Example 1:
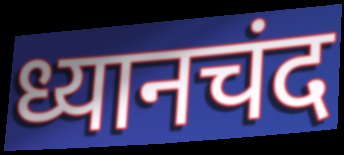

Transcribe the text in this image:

ध्यानचंद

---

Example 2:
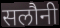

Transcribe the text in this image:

सलौनी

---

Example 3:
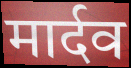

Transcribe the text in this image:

मार्दव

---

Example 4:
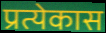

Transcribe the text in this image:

प्रत्येकास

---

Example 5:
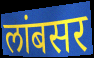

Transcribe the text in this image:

लांबसर